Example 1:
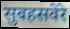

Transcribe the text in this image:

सुबहसवेरे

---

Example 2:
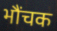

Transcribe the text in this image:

भौंचक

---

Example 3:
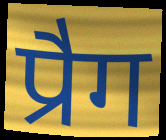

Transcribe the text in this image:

प्रैग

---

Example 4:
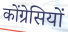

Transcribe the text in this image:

कोंग्रेसियों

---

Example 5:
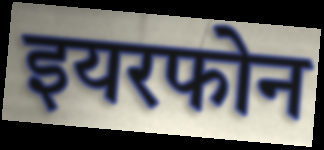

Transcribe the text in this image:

इयरफोन